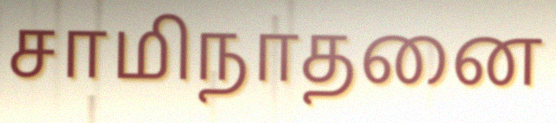
சாமிநாதனை